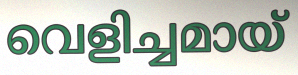
വെളിച്ചമായ്